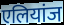
एलियांज